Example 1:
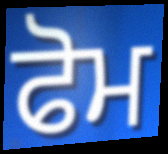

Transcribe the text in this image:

ਫੋਮ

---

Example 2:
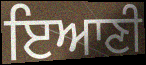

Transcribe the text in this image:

ਇਆਣੀ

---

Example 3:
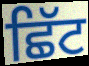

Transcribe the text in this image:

ਛਿੱਟ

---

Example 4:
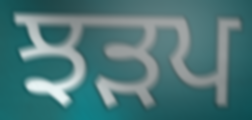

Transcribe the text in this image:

ਝੜਪ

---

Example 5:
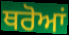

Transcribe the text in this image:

ਥਰੋਆਂ